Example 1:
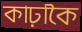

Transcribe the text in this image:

কাঢ়াকৈ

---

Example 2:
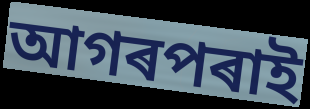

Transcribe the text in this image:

আগৰপৰাই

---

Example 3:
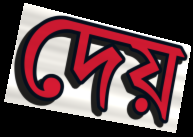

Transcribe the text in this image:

দেয়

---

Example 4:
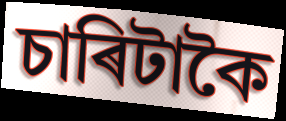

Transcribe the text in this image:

চাৰিটাকৈ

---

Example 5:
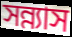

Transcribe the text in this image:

সন্ন্যাস